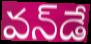
వన్‌డే